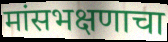
मांसभक्षणाचा